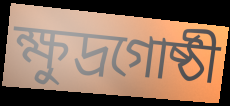
ক্ষুদ্রগোষ্ঠী